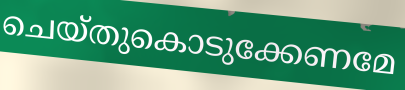
ചെയ്തുകൊടുക്കേണമേ